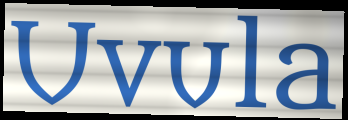
Uvula